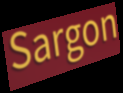
Sargon